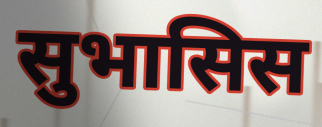
सुभासिस